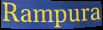
Rampura